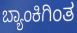
ಬ್ಯಾಂಕಿಗಿಂತ